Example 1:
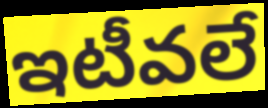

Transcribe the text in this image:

ఇటీవలే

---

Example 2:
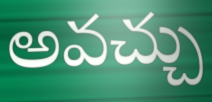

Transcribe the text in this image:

అవచ్చు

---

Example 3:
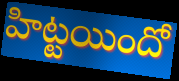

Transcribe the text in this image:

హిట్టయిందో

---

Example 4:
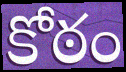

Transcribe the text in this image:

కోఠం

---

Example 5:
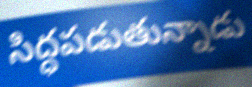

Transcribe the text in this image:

సిద్ధపడుతున్నాడు